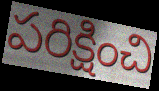
పరిక్షించి